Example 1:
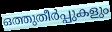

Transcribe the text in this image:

ഒത്തുതീർപ്പുകളും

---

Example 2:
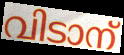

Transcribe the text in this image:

വിടാന്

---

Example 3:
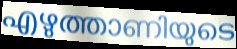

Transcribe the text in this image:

എഴുത്താണിയുടെ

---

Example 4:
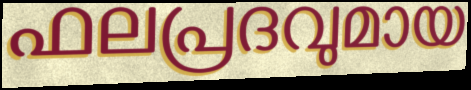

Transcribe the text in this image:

ഫലപ്രദവുമായ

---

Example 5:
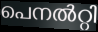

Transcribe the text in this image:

പെനൽറ്റി